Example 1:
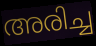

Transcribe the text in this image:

അരിച്ച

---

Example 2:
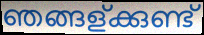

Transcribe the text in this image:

ഞങ്ങള്ക്കുണ്ട്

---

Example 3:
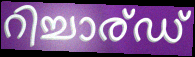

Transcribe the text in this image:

റിച്ചാര്ഡ്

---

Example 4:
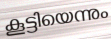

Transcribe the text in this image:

കൂട്ടിയെന്നും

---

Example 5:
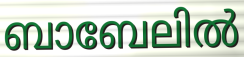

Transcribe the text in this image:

ബാബേലിൽ